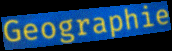
Geographie